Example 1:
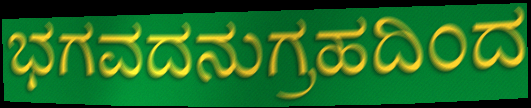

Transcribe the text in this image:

ಭಗವದನುಗ್ರಹದಿಂದ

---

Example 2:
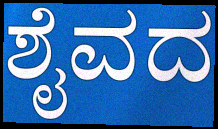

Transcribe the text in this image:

ಶೈವದ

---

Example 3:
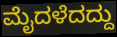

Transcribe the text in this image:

ಮೈದಳೆದದ್ದು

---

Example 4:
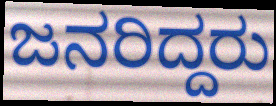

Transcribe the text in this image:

ಜನರಿದ್ದರು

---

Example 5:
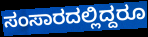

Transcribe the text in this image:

ಸಂಸಾರದಲ್ಲಿದ್ದರೂ